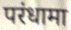
परंधामा